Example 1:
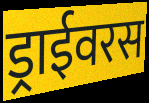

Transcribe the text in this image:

ड्राईवरस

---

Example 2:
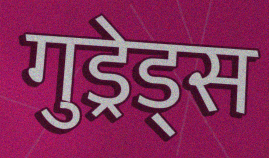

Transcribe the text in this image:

गुड्रेड्स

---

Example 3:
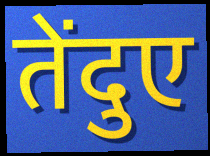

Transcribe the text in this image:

तेंदुए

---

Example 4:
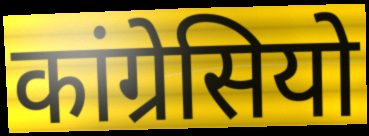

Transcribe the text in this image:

कांग्रेसियो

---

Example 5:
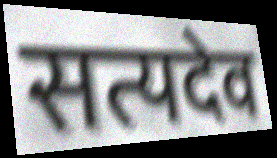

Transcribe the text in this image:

सत्यदेव